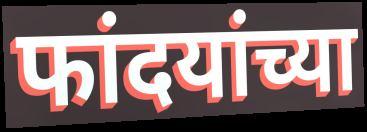
फांदयांच्या